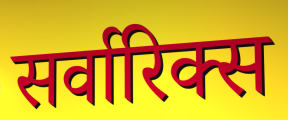
सर्वारिक्स